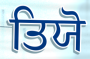
ਤਿਯੋ